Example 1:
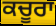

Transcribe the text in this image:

ਕਚੂਰਾ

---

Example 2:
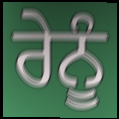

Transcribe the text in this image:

ਰੇਨੂੰ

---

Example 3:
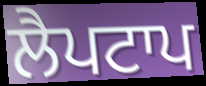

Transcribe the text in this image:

ਲੈਪਟਾਪ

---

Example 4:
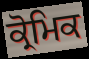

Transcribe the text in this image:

ਕ੍ਰੋਮਿਕ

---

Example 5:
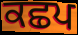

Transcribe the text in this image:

ਕਛਪ